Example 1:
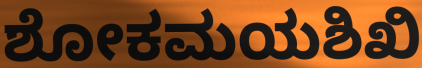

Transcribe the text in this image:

ಶೋಕಮಯಶಿಖಿ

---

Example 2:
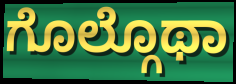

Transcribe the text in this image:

ಗೊಲ್ಗೊಥಾ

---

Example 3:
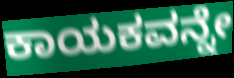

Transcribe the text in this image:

ಕಾಯಕವನ್ನೇ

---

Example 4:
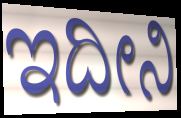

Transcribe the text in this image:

ಇದೀನಿ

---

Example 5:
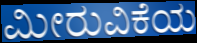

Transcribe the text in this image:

ಮೀರುವಿಕೆಯ